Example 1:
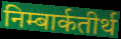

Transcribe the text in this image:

निम्बार्कतीर्थ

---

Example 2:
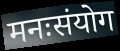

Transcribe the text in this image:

मनःसंयोग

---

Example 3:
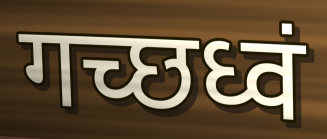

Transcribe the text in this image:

गच्छध्वं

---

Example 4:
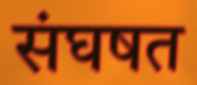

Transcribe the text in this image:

संघषत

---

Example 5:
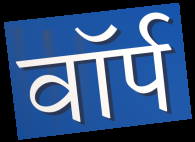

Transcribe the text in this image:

वॉर्प